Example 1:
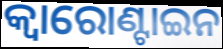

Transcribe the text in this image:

କ୍ୱାରୋଣ୍ଟାଇନ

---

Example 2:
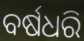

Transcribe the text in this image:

ବର୍ଷଧରି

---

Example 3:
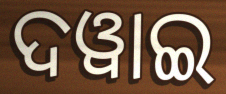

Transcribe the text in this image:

ଦୱାଇ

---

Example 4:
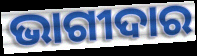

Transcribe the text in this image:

ଭାଗୀଦାର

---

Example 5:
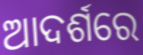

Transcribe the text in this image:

ଆଦର୍ଶରେ